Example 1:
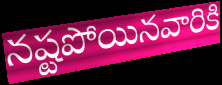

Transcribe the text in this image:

నష్టపోయినవారికి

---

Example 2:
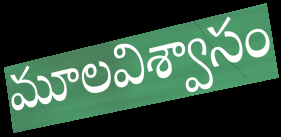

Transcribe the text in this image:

మూలవిశ్వాసం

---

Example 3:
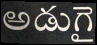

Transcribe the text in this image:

అడుగై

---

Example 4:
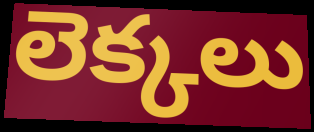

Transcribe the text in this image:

లెక్కలు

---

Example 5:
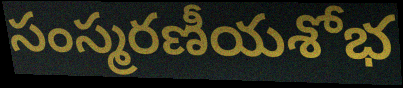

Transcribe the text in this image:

సంస్మరణీయశోభ